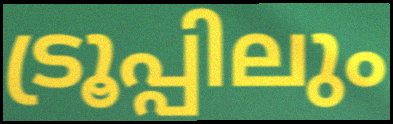
ട്രൂപ്പിലും